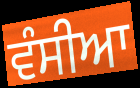
ਵੰਸੀਆ